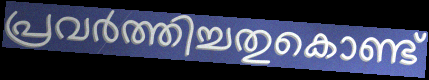
പ്രവർത്തിച്ചതുകൊണ്ട്